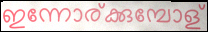
ഇന്നോര്ക്കുമ്പോള്